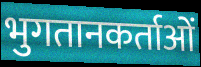
भुगतानकर्ताओं